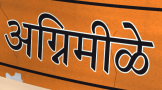
अग्निमीळे